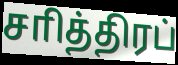
சரித்திரப்